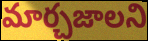
మార్చజాలని